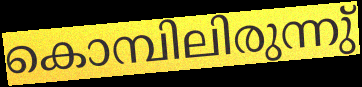
കൊമ്പിലിരുന്നു്